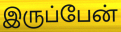
இருப்பேன்